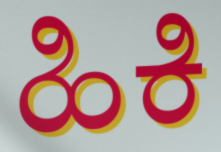
ಹಿಕಿ